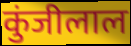
कुंजीलाल